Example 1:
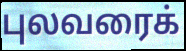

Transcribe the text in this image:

புலவரைக்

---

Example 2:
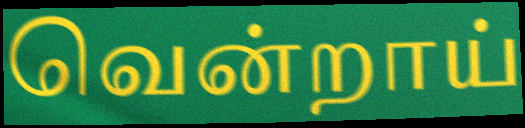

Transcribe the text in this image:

வென்றாய்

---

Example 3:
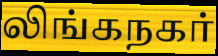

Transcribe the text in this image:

லிங்கநகர்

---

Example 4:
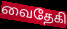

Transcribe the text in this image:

வைதேகி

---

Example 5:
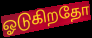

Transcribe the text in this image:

ஓடுகிறதோ